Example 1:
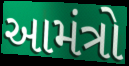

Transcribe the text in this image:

આમંત્રો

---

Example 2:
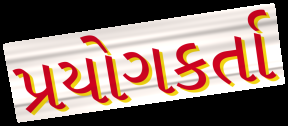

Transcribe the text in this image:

પ્રયોગકર્તા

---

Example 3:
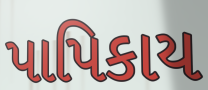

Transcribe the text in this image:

પાપિકાય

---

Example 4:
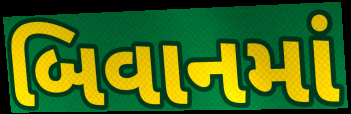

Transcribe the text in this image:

બિવાનમાં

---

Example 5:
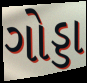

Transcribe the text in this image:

ગોડ્ડા